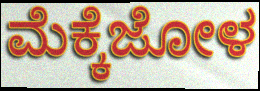
ಮೆಕ್ಕೆಜೋಳ